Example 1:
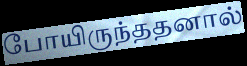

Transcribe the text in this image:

போயிருந்ததனால்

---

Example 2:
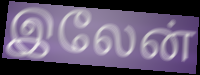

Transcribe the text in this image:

இலேன்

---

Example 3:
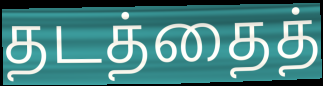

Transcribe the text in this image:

தடத்தைத்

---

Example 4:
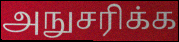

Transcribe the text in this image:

அநுசரிக்க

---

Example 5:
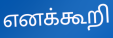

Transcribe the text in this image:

எனக்கூறி